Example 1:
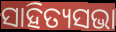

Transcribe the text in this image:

ସାହିତ୍ୟସଭା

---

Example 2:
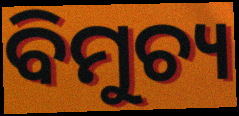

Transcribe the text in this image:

ବିମୁଚ୍ୟ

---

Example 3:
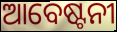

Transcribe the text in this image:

ଆବେଷ୍ଟନୀ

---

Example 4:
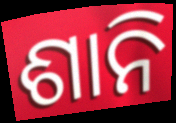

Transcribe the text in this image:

ଶାନି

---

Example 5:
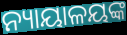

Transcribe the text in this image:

ନ୍ୟାୟାଳୟଙ୍କ